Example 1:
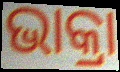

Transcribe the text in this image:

ଭାକ୍ରା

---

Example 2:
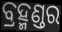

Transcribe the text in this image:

ବ୍ରହ୍ମଣ୍ଡର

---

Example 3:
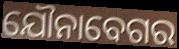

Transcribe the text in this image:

ଯୌନାବେଗର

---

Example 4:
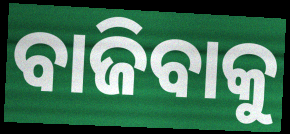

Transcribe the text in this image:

ବାଜିବାକୁ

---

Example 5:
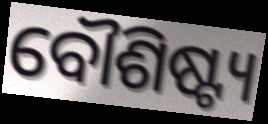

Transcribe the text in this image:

ବୌଶିଷ୍ଟ୍ୟ